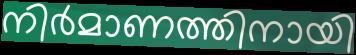
നിർമാണത്തിനായി